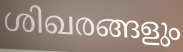
ശിഖരങ്ങളും